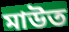
মাউত